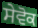
ਸੇਵੋਕ